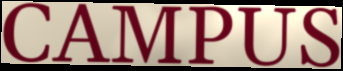
CAMPUS